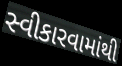
સ્વીકારવામાંથી